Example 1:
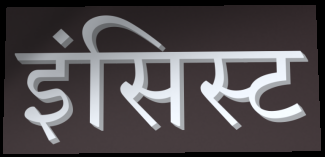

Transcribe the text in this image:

इंसिस्ट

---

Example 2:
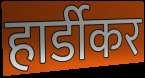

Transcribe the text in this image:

हार्डीकर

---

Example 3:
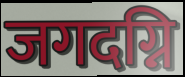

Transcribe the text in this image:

जगदग्नि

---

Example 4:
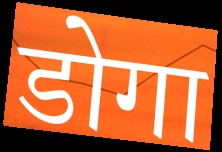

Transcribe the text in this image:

डोगा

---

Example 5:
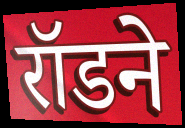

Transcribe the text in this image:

रॉडने